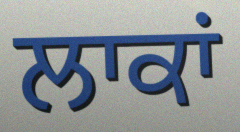
ਲਾਕਾਂ